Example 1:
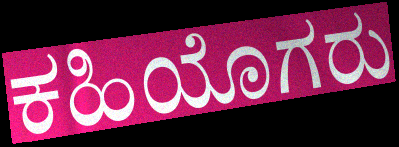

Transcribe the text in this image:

ಕಹಿಯೊಗರು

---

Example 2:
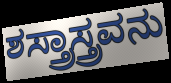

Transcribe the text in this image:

ಶಸ್ತ್ರಾಸ್ತ್ರವನು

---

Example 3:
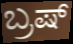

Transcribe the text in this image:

ಬ್ರಷ್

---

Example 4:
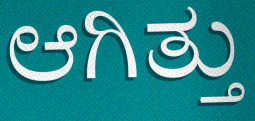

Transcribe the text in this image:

ಆಗಿತ್ತು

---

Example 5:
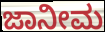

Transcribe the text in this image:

ಜಾನೀಮ